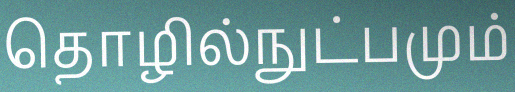
தொழில்நுட்பமும்